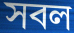
সবল